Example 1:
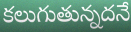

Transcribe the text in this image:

కలుగుతున్నదనే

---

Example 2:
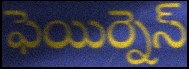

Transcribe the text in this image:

ఫెయిర్నెస్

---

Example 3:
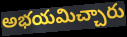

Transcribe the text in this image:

అభయమిచ్చారు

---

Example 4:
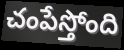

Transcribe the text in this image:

చంపేస్తోంది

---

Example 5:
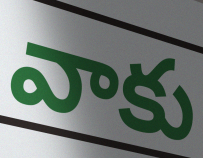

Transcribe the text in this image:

వాకు